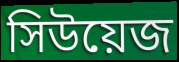
সিউয়েজ